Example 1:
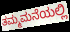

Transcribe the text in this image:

ತಮ್ಮಮನೆಯಲ್ಲಿ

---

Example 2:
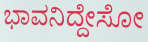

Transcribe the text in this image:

ಭಾವನಿದ್ದೇಸೋ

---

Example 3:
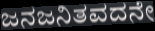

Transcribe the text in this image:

ಜನಜನಿತವದನೇ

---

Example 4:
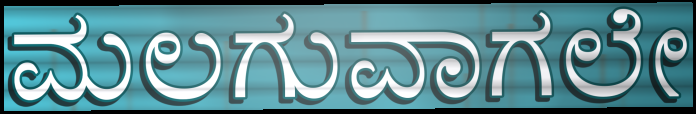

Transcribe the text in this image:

ಮಲಗುವಾಗಲೇ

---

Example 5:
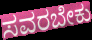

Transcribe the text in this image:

ಸವರಬೇಕು